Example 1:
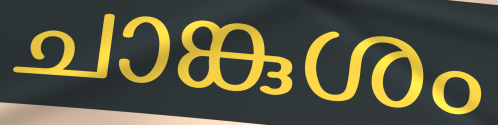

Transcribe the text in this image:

ചാങ്കുശം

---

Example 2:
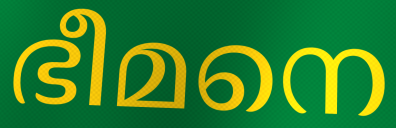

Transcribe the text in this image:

ഭീമനെ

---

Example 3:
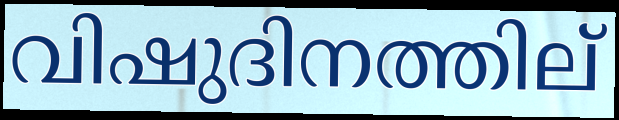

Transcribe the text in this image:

വിഷുദിനത്തില്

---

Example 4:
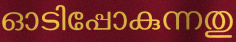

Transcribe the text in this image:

ഓടിപ്പോകുന്നതു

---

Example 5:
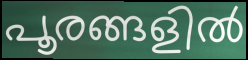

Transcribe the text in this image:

പൂരങ്ങളിൽ